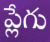
ప్లేగు